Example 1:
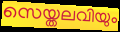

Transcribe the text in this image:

സെയ്തലവിയും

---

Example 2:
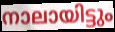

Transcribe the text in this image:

നാലായിട്ടും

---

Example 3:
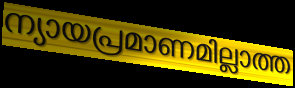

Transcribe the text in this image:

ന്യായപ്രമാണമില്ലാത്ത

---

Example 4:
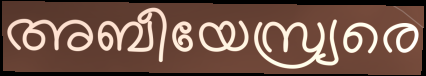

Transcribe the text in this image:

അബീയേസ്ര്യരെ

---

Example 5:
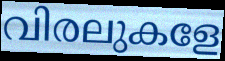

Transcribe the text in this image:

വിരലുകളേ